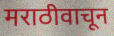
मराठीवाचून